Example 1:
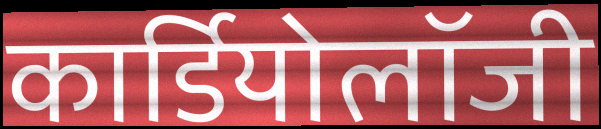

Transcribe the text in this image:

कार्डियोलॉजी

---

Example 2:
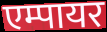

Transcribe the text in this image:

एम्पायर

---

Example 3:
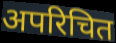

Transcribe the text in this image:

अपरिचित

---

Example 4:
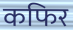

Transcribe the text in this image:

कफिर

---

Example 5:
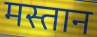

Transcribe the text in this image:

मस्तान